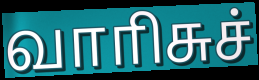
வாரிசுச்